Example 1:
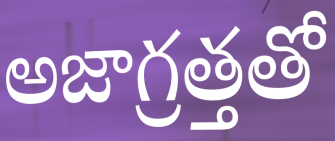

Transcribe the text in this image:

అజాగ్రత్తతో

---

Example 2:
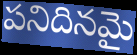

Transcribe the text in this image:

పనిదినమై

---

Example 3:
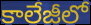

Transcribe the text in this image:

కాలేజీలో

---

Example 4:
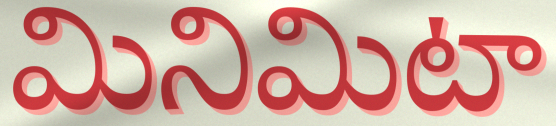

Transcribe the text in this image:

మినిమిటా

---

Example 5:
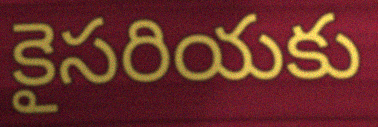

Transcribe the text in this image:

కైసరియకు